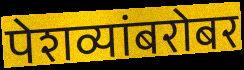
पेशव्यांबरोबर